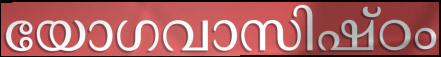
യോഗവാസിഷ്ഠം